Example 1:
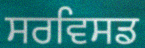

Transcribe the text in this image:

ਸਰਵਿਸਡ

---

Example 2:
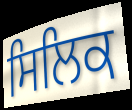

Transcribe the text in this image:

ਸਿਲਿਕ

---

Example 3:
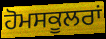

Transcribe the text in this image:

ਹੋਮਸਕੂਲਰਾਂ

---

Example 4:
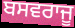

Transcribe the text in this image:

ਬਸਵਰਾਜੂ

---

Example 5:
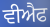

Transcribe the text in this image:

ਵੀਐਫ